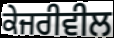
ਕੇਜਰੀਵੀਲ